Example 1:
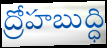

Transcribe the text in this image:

ద్రోహబుద్ధి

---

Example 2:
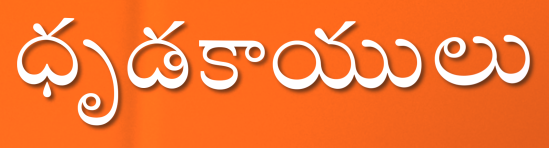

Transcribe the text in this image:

ధృడకాయులు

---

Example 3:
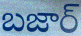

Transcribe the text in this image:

బజార్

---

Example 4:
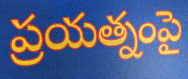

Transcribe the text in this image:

ప్రయత్నంపై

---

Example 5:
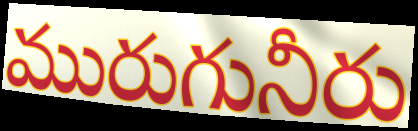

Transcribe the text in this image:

మురుగునీరు